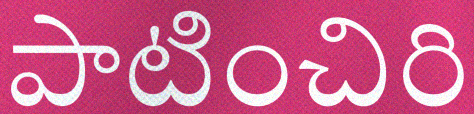
పాటించిరి